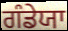
ਗੰਡੇਯਾ